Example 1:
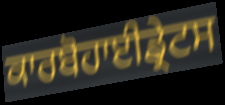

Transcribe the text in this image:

ਕਾਰਬੋਹਾਈਡ੍ਰੇਟਸ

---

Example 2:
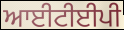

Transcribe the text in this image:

ਆਈਟੀਈਪੀ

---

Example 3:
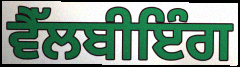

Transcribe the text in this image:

ਵੈੱਲਬੀਇੰਗ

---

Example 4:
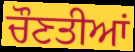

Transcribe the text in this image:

ਚੌਣਤੀਆਂ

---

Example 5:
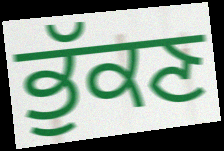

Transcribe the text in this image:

ਭੁੱਕਣ